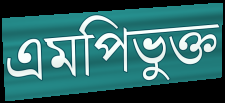
এমপিভুক্ত